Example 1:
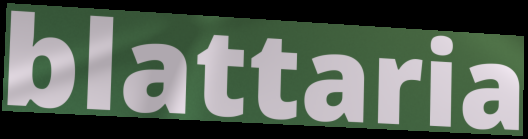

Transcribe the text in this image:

blattaria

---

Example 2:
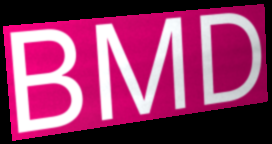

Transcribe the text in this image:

BMD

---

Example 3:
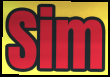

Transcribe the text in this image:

Sim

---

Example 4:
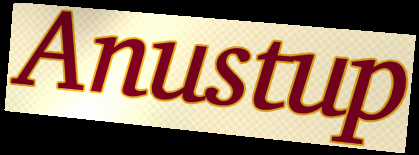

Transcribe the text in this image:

Anustup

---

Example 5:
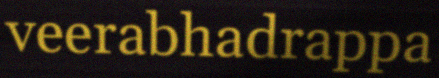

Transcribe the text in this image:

veerabhadrappa